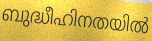
ബുദ്ധീഹിനതയിൽ